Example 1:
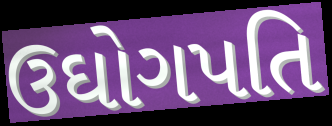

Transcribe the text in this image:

ઉઘોગપતિ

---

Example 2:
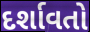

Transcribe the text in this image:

દર્શાવતો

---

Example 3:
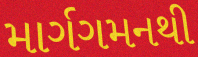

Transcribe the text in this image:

માર્ગગમનથી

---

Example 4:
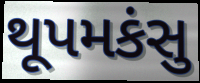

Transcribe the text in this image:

થૂપમકંસુ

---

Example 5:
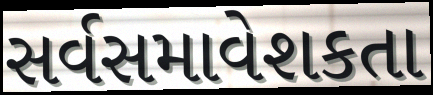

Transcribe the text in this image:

સર્વસમાવેશકતા